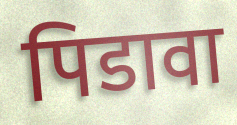
पिडावा